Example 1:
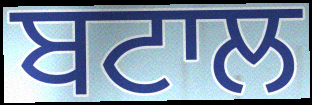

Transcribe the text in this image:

ਬਟਾਲ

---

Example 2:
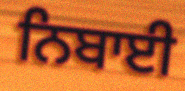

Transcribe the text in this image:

ਨਿਬਾਈ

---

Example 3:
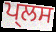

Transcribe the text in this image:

ਪ੍ਲਸ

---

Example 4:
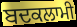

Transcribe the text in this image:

ਬਦਕਲਾਮੀ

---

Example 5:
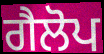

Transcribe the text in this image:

ਗੈਲੋਪ